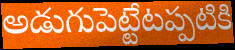
అడుగుపెట్టేటప్పటికి